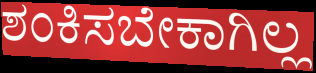
ಶಂಕಿಸಬೇಕಾಗಿಲ್ಲ